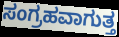
ಸಂಗ್ರಹವಾಗುತ್ತ